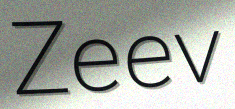
Zeev